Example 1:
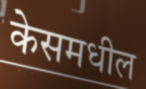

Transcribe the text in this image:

केसमधील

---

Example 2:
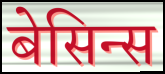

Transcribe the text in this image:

बेसिन्स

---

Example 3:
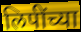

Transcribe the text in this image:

लिपींच्या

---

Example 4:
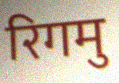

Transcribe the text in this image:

रिगमु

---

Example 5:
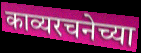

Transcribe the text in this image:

काव्यरचनेच्या